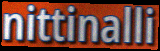
nittinalli